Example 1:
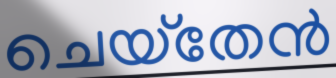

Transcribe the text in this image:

ചെയ്‌തേൻ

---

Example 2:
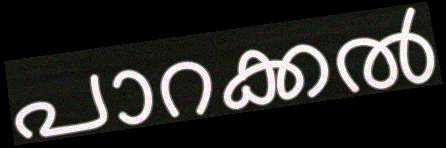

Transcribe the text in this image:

പാറക്കൽ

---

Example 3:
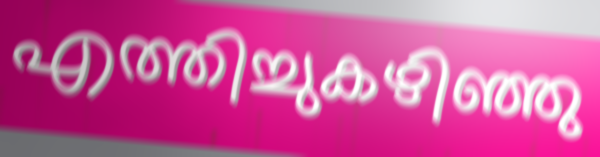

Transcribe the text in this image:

എത്തിച്ചുകഴിഞ്ഞു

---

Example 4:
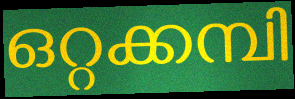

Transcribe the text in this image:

ഒറ്റക്കമ്പി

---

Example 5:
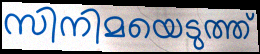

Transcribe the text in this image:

സിനിമയെടുത്ത്